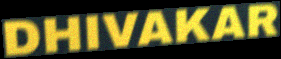
DHIVAKAR